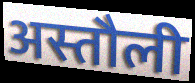
अस्तौली